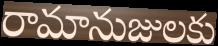
రామానుజులకు